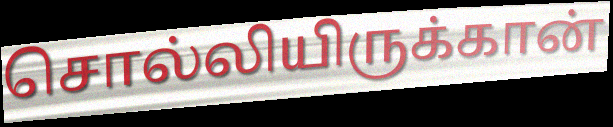
சொல்லியிருக்கான்